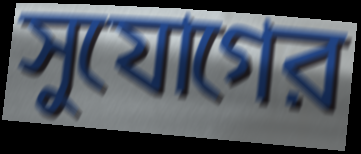
সুযোগের